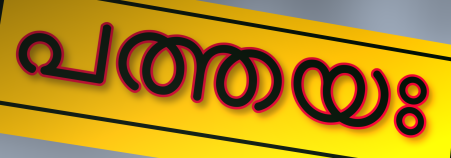
പത്തയഃ